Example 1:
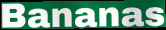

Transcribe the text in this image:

Bananas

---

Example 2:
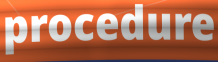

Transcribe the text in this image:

procedure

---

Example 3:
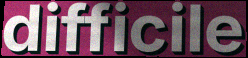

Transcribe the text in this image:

difficile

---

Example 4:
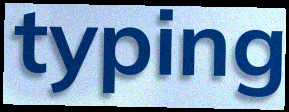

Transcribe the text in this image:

typing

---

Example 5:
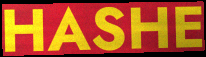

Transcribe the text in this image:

HASHE